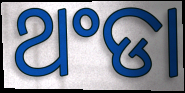
ଥଂଡା